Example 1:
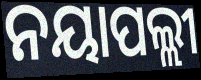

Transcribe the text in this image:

ନୟାପଲ୍ଲୀ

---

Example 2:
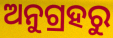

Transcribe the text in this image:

ଅନୁଗ୍ରହରୁ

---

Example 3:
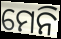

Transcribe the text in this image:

ମେନି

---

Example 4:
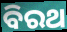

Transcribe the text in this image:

ବିରଥ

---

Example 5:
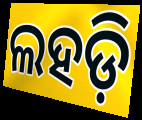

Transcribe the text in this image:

ଲହଡ଼ି